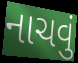
નાચવું